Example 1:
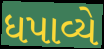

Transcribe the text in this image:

ધપાવ્યે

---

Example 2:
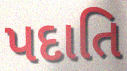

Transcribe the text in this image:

પદાતિ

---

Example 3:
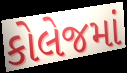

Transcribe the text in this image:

કોલેજમાં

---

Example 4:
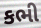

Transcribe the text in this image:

કભી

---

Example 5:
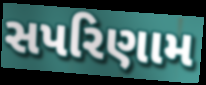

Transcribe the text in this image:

સપરિણામ